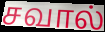
சவால்